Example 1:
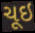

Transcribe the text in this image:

ચૂઇ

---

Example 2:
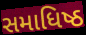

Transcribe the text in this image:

સમાધિષ્ઠ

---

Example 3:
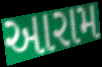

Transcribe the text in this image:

આરામ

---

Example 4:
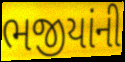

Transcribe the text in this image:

ભજીયાંની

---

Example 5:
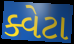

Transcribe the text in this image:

ક્વેટા